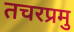
तचरप्रमु